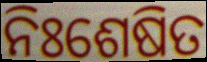
ନିଃଶେଷିତ